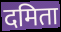
दमिता